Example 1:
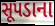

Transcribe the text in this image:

સૂપડાના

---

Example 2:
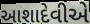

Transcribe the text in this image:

આશાદેવીએ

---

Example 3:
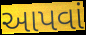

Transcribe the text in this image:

આપવાં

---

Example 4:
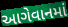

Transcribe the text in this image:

આગેવાનમાં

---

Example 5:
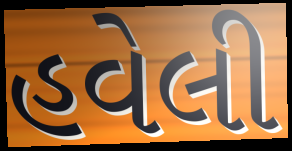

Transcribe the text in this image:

હવેલી